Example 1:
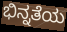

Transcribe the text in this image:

ಭಿನ್ನತೆಯ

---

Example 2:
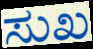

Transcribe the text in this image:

ಸುಖ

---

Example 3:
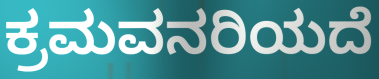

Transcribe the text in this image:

ಕ್ರಮವನರಿಯದೆ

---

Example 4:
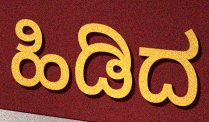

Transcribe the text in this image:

ಹಿಡಿದ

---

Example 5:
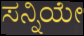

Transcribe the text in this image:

ಸನ್ನಿಯೇ